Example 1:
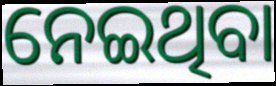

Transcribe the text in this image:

ନେଇଥିବା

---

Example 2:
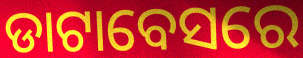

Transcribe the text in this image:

ଡାଟାବେସରେ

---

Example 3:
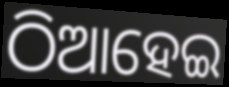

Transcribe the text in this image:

ଠିଆହେଇ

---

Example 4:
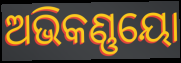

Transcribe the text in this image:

ଅଭିକଣ୍ଣୟୋ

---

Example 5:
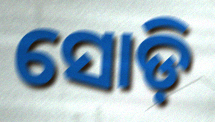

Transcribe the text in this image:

ସୋଡ଼ି